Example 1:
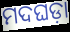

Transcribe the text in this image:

ମଦଘଡ଼ା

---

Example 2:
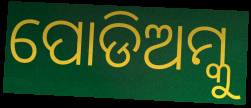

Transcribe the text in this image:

ପୋଡିଅମ୍କୁ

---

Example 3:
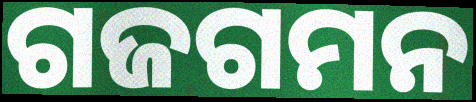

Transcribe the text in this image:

ଗଜଗମନ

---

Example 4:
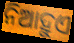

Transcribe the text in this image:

ନିଆହୁଏ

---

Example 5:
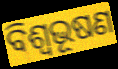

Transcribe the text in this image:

ବିଶ୍ବଭୂଷଣ